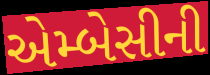
એમ્બેસીની